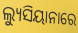
ଲ୍ୟୁସିୟାନାରେ